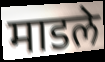
माडले